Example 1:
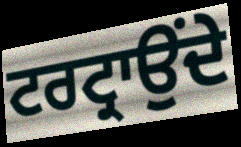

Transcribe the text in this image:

ਟਰਟ੍ਰਾਉਂਦੇ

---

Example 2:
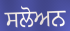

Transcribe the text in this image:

ਸਲੋਅਨ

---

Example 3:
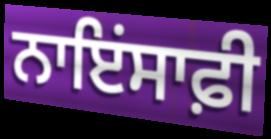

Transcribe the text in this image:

ਨਾਇਂਸਾਫ਼ੀ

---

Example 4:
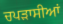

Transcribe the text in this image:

ਚਪੜਾਸੀਆਂ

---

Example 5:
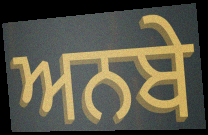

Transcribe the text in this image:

ਅਨਬੇ